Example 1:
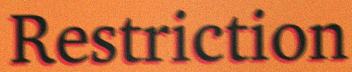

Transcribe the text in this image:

Restriction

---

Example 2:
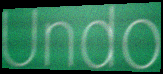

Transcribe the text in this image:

Undo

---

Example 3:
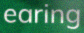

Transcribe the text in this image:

earing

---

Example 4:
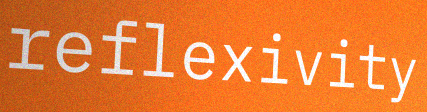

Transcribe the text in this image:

reflexivity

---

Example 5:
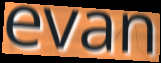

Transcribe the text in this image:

evan